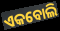
ଏକବୋଲି